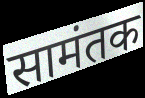
सामंतक